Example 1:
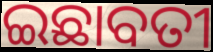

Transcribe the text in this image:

ଇଛାବତୀ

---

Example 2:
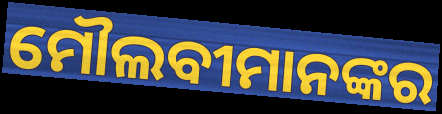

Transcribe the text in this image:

ମୌଲବୀମାନଙ୍କର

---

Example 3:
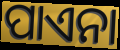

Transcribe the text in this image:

ପାଏନା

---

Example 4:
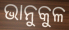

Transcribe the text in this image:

ଭାନୁକୁଳ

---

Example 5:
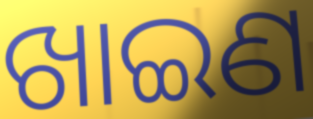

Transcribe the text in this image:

ଖାଇଣ